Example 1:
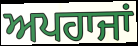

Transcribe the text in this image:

ਅਪਹਾਜਾਂ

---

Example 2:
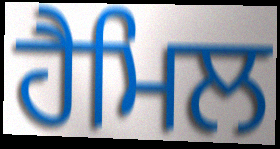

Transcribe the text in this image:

ਹੈਮਿਲ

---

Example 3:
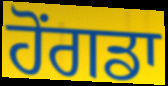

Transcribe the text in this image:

ਹੋਂਗਡਾ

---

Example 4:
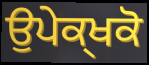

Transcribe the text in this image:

ਉਪੇਕ੍ਖਕੋ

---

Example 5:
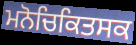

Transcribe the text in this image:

ਮਨੋਚਿਕਿਤਸਕ